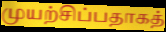
முயற்சிப்பதாகத்